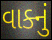
વાક્નું